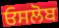
ਓਸਲੋਬ